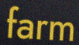
farm